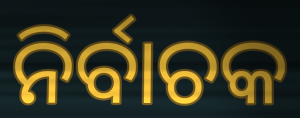
ନିର୍ବାଚକ